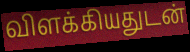
விளக்கியதுடன்